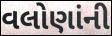
વલોણાંની